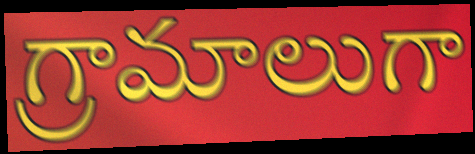
గ్రామాలుగా